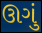
ઊગું